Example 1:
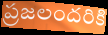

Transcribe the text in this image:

ప్రజలందరికి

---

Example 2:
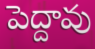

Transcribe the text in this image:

పెద్దావు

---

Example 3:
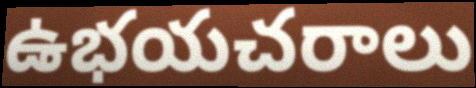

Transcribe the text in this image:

ఉభయచరాలు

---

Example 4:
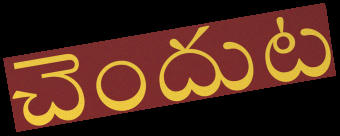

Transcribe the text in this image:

చెందుట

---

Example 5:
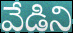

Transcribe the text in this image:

వేడిని